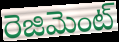
రెజిమెంట్